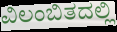
ವಿಲಂಬಿತದಲ್ಲಿ